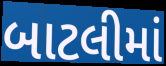
બાટલીમાં